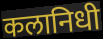
कलानिधी